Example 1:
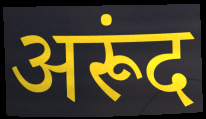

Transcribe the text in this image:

अरूंद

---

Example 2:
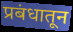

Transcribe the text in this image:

प्रबंधातून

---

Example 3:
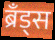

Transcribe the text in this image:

ब्रँड्स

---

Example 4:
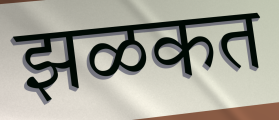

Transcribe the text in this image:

झळकत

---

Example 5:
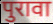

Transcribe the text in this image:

पुरावा